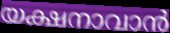
യക്ഷനാവാൻ